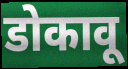
डोकावू